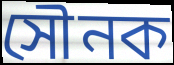
সৌনক